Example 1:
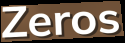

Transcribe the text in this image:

Zeros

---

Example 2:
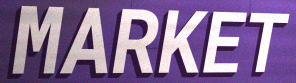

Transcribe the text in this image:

MARKET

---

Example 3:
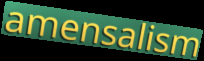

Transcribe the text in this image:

amensalism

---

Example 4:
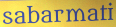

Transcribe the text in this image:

sabarmati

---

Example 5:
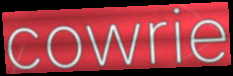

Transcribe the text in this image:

cowrie